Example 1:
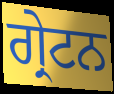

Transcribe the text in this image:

ਗ੍ਰੇਟਨ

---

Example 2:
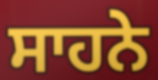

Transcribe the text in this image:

ਸਾਹਨੇ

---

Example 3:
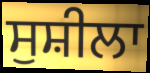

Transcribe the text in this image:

ਸੁਸ਼ੀਲਾ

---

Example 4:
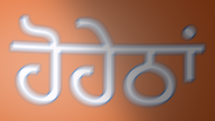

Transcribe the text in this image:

ਹੋਹੇਠਾਂ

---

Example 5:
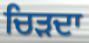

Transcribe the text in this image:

ਚਿੜਦਾ